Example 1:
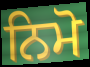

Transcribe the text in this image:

ਨਿਮੋ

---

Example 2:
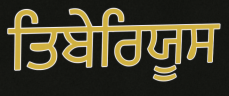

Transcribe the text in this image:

ਤਿਬੇਰਿਯੂਸ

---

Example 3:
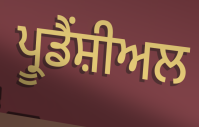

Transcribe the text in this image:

ਪ੍ਰੂਡੈਂਸ਼ੀਅਲ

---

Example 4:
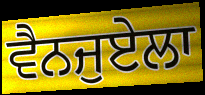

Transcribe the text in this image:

ਵੈਨਜੁਏਲਾ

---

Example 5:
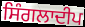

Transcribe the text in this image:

ਸਿੰਗਲਾਦੀਪ